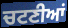
ਚਟਣੀਆਂ